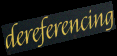
dereferencing